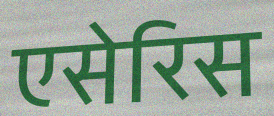
एसेरिस